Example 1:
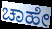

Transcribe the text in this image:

ಚಾಹೇ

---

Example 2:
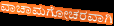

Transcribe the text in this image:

ವಾಚಾಮಗೋಚರವಾಗಿ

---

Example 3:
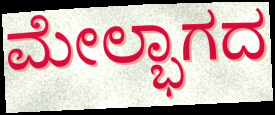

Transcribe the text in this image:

ಮೇಲ್ಭಾಗದ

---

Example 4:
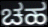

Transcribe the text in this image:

ಚಹ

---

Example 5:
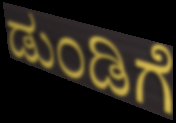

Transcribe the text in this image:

ಡುಂಡಿಗೆ